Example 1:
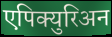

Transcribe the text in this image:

एपिक्युरिअन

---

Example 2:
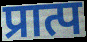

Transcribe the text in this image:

प्रात्प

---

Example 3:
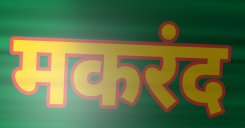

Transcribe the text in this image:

मकरंद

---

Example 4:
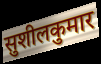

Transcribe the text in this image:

सुशीलकुमार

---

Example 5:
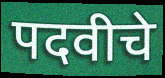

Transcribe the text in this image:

पदवीचे